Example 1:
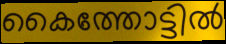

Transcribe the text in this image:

കൈത്തോട്ടിൽ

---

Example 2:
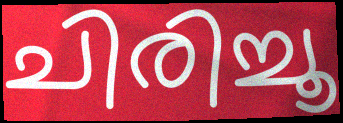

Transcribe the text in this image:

ചിരിച്ചൂ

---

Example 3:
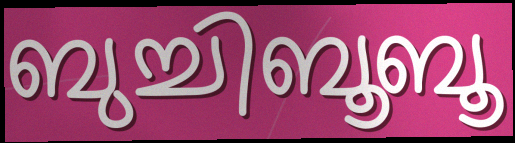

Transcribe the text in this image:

ബുച്ചിബൂബൂ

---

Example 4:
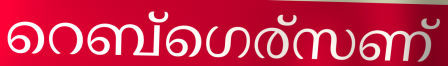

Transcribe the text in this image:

റെബ്ഗെര്സണ്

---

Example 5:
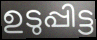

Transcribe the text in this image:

ഉടുപ്പിട്ട